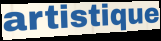
artistique